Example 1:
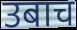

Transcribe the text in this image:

उबाच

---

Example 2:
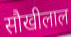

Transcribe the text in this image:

सौखीलाल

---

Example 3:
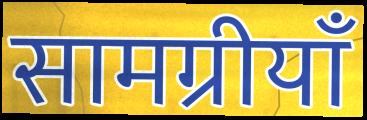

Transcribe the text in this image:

सामग्रीयाँ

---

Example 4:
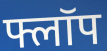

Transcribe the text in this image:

फ्लॉप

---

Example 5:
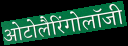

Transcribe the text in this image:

ओटोलैरिंगोलॉजी